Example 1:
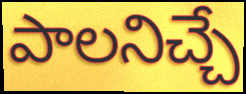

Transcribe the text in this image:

పాలనిచ్చే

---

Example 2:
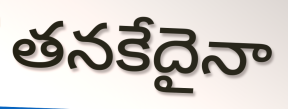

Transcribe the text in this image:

తనకేదైనా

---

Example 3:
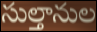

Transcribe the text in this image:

సుల్తానుల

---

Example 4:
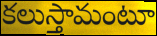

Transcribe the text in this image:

కలుస్తామంటూ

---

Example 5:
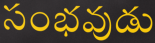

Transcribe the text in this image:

సంభవుడు